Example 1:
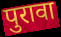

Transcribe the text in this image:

पुरावा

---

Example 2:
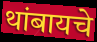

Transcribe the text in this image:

थांबायचे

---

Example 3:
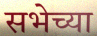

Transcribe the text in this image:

सभेच्या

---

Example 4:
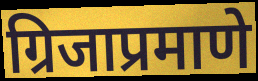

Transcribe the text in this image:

ग्रिजाप्रमाणे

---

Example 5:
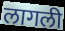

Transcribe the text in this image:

लागली